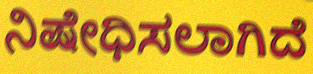
ನಿಷೇಧಿಸಲಾಗಿದೆ